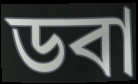
ডবা